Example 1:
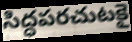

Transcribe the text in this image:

సిద్ధపరచుటకై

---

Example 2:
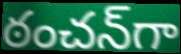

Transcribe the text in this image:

ఠంచన్‌గా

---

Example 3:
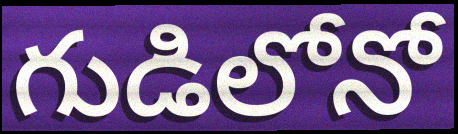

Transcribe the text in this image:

గుడిలోనో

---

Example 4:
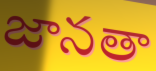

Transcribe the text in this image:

జానతా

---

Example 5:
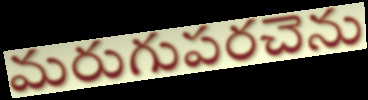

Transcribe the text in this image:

మరుగుపరచెను